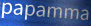
papamma